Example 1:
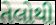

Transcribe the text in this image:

તેલોથી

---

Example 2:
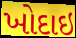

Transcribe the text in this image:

ખોદાઇ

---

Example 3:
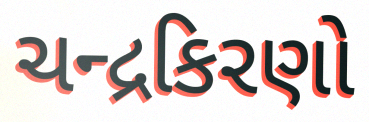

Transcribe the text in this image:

ચન્દ્રકિરણો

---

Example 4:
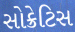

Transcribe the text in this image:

સોક્રેટિસ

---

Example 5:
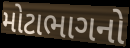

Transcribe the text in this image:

મોટાભાગનો